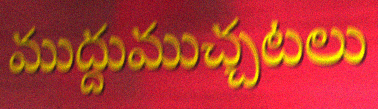
ముద్దుముచ్చటలు